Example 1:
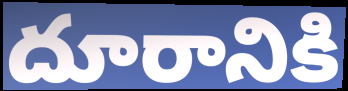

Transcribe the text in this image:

దూరానికి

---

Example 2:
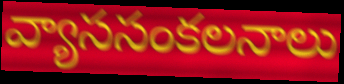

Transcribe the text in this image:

వ్యాససంకలనాలు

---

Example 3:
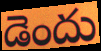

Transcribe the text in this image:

డెందు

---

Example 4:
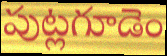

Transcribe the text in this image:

పుట్లగూడెం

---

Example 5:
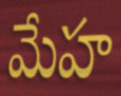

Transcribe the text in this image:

మేహ